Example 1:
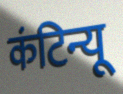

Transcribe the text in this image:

कंटिन्यू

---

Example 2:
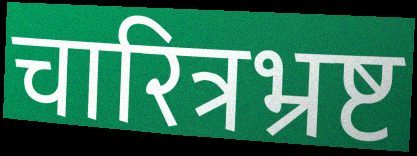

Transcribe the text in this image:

चारित्रभ्रष्ट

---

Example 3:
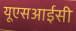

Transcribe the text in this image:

यूएसआईसी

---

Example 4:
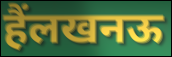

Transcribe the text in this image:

हैंलखनऊ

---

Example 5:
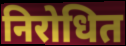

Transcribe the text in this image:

निरोधित